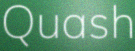
Quash